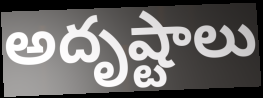
అదృష్టాలు